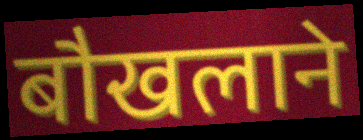
बौखलाने